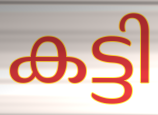
കട്ടി